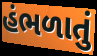
હંભળાતું